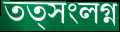
তত্সংলগ্ন